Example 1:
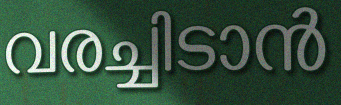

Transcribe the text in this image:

വരച്ചിടാൻ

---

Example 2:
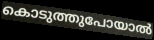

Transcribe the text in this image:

കൊടുത്തുപോയാൽ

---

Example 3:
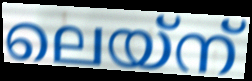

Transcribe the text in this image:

ലെയ്ന്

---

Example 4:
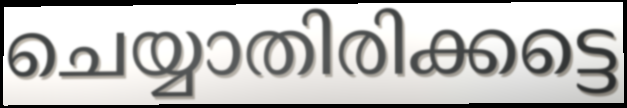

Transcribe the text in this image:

ചെയ്യാതിരിക്കട്ടെ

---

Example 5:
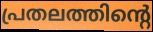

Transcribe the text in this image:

പ്രതലത്തിന്റെ